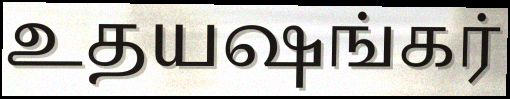
உதயஷங்கர்